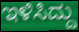
ಇಳಿಸಿದ್ದು